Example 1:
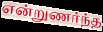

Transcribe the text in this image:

என்றுணர்ந்த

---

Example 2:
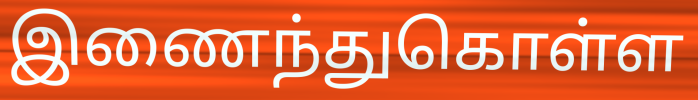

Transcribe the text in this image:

இணைந்துகொள்ள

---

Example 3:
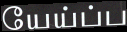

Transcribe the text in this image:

யேய்ப்ப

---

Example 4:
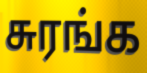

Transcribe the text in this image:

சுரங்க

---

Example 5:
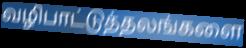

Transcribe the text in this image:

வழிபாட்டுத்தலங்களை